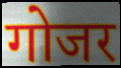
गोजर